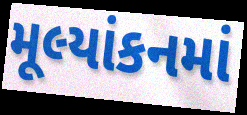
મૂલ્યાંકનમાં